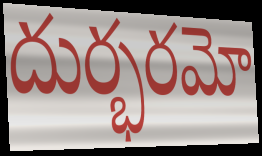
దుర్భరమో